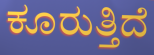
ಕೂರುತ್ತಿದೆ